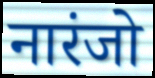
नारंजो